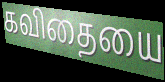
கவிதையை